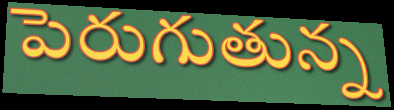
పెరుగుతున్న